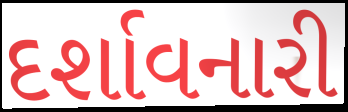
દર્શાવનારી